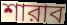
শারাব